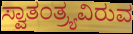
ಸ್ವಾತಂತ್ರ್ಯವಿರುವ